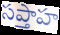
సప్తాహ